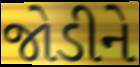
જોડીને